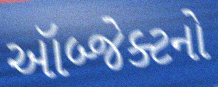
ઑબ્જેક્ટનો